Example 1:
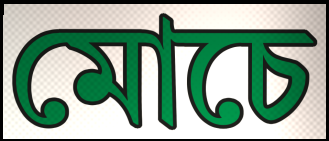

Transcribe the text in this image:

মোচে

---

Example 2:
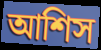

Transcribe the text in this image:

আশিস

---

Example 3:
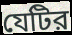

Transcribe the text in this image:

যেটির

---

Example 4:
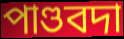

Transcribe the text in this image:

পাণ্ডবদা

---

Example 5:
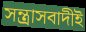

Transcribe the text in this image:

সন্ত্রাসবাদীই